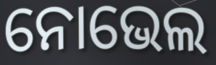
ନୋଭେଲ